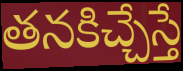
తనకిచ్చేస్తే